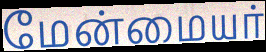
மேன்மையர்